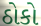
ઠોકો